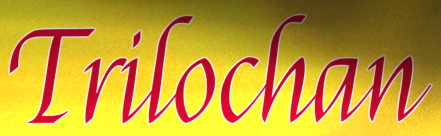
Trilochan